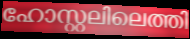
ഹോസ്റ്റലിലെത്തി